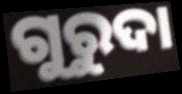
ଗୁରୁଦା